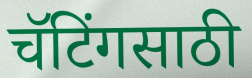
चॅटिंगसाठी